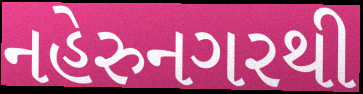
નહેરુનગરથી